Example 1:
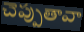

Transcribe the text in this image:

చెప్పుతావా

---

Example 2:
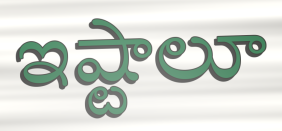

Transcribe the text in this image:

ఇష్టాలూ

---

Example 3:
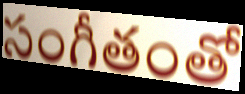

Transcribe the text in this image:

సంగీతంతో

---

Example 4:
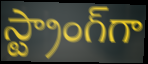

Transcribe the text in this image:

స్ట్రాంగ్‌గా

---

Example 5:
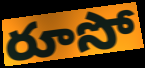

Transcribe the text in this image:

రూసో